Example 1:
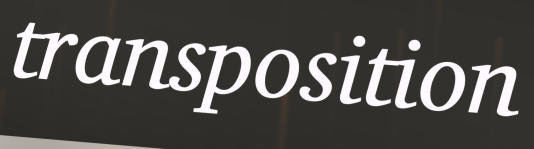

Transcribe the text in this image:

transposition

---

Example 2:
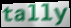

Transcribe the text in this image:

tally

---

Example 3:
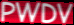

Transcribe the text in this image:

PWDV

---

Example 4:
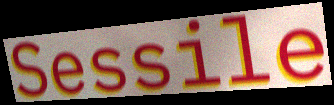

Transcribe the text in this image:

Sessile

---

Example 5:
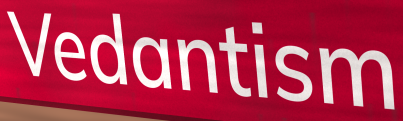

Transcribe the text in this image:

Vedantism